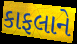
કાફલાને